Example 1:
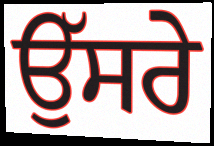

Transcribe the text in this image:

ਉੱਸਰੇ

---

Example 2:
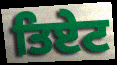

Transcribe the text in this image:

ਤਿਏਟ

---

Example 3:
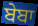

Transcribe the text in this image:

ਬੇਬਾ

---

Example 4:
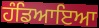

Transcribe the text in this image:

ਹੰਡਿਆਇਆ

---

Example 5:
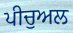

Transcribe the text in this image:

ਪੀਚੁਅਲ